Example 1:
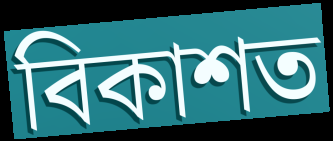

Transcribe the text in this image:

বিকাশত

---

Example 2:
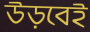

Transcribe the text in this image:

উড়বেই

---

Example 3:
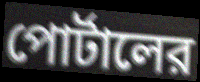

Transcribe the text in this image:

পোর্টালের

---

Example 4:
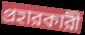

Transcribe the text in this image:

প্রহারকারী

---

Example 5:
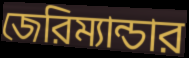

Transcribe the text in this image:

জেরিম্যান্ডার